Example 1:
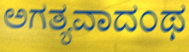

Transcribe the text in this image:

ಅಗತ್ಯವಾದಂಥ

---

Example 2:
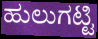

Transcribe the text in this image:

ಹುಲುಗಟ್ಟಿ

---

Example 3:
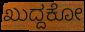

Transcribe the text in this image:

ಖುದ್ದಕೋ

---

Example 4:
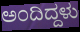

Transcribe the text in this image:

ಅಂದಿದ್ದಳು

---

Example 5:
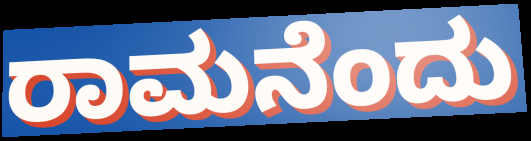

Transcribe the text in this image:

ರಾಮನೆಂದು